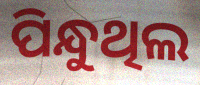
ପିନ୍ଧୁଥିଲ